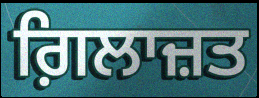
ਗ਼ਿਲਾਜ਼ਤ